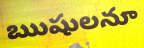
ఋషులనూ